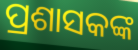
ପ୍ରଶାସକଙ୍କ